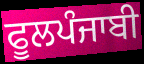
ਫੂਲਪੰਜਾਬੀ